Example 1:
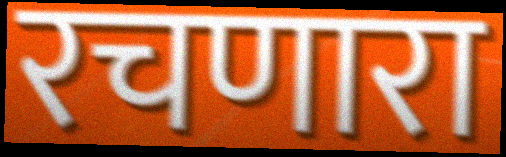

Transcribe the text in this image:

रचणारा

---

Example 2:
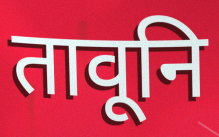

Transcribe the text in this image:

तावूनि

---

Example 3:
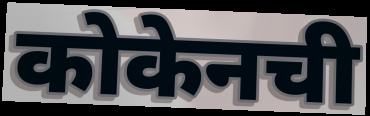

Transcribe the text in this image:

कोकेनची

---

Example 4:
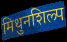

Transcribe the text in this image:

मिथुनशिल्प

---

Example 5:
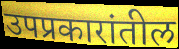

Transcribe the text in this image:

उपप्रकारांतील